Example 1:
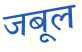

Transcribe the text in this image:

जबूल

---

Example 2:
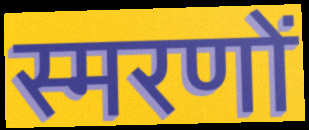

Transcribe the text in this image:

स्मरणों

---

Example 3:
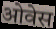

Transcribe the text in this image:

ओवेस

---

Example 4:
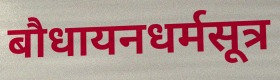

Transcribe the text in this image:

बौधायनधर्मसूत्र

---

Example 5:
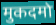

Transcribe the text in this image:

मुकदमो